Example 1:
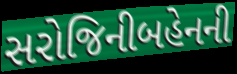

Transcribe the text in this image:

સરોજિનીબહેનની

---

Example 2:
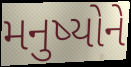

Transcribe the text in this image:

મનુષ્યોને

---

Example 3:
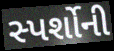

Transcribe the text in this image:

સ્પર્શોની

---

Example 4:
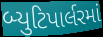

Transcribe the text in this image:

બ્યુટિપાર્લરમાં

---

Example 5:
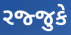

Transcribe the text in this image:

રજ્જુકે